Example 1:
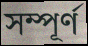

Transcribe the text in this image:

সম্পূর্ণ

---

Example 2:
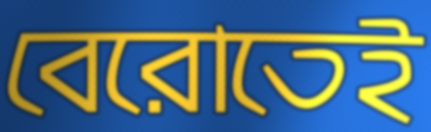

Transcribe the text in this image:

বেরোতেই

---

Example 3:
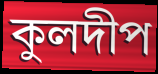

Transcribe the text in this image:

কুলদীপ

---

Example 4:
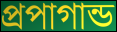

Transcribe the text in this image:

প্রপাগান্ড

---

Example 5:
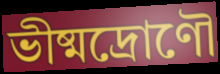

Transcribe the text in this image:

ভীষ্মদ্রোণৌ